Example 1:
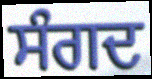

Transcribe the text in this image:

ਸੰਗਦ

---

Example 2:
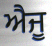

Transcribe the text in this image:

ਐਜੂ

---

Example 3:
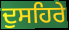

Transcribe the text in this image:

ਦੁਸਹਿਰੇ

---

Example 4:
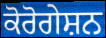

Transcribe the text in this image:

ਕੋਰੋਗੇਸ਼ਨ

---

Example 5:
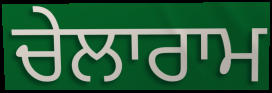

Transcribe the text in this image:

ਚੇਲਾਰਾਮ